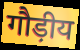
गौड़ीय